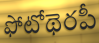
ఫోటోథెరపీ